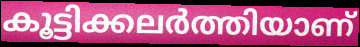
കൂട്ടിക്കലർത്തിയാണ്